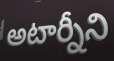
అటార్నీని